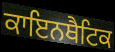
ਕਾਇਨਥੈਟਿਕ